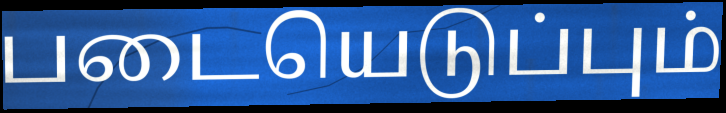
படையெடுப்பும்